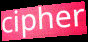
cipher